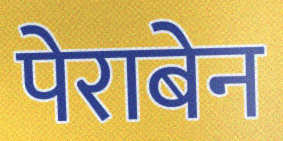
पेराबेन